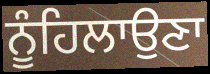
ਨੂੰਹਿਲਾਉਣਾ